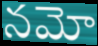
నమో